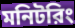
মনিটরিং